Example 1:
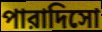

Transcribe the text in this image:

পারাদিসো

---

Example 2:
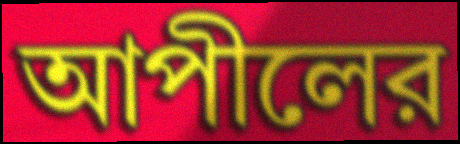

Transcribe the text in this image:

আপীলের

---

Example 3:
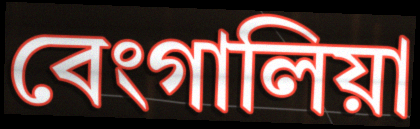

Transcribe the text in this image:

বেংগালিয়া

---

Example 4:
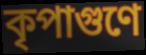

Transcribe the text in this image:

কৃপাগুণে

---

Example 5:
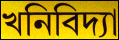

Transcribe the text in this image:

খনিবিদ্যা